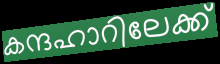
കന്ദഹാറിലേക്ക്